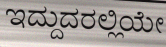
ಇದ್ದುದರಲ್ಲಿಯೇ